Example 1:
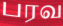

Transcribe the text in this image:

பரவ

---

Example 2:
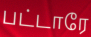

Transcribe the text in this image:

பட்டாரே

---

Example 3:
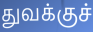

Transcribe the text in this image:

துவக்குச்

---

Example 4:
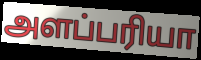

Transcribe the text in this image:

அளப்பரியா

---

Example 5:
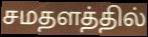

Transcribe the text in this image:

சமதளத்தில்